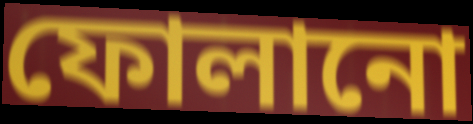
ফোলানো